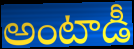
అంటాడీ